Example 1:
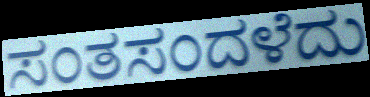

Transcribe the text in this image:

ಸಂತಸಂದಳೆದು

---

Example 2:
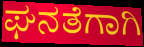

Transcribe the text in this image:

ಘನತೆಗಾಗಿ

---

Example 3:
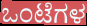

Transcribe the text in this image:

ಒಂಟೆಗಳ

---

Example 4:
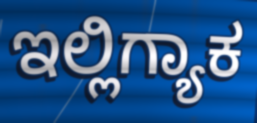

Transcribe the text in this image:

ಇಲ್ಲಿಗ್ಯಾಕ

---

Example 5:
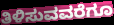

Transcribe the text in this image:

ತಿಳಿಸುವವರೆಗೂ